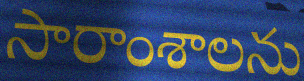
సారాంశాలను